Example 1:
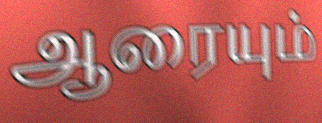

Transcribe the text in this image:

ஆரையும்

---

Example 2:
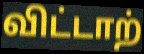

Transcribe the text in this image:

விட்டாற்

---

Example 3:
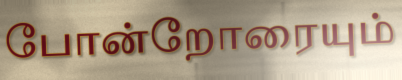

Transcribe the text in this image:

போன்றோரையும்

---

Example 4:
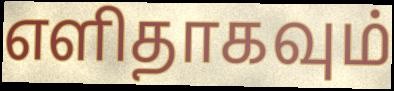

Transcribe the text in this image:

எளிதாகவும்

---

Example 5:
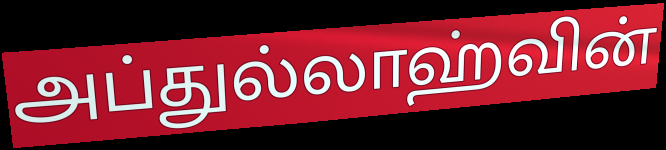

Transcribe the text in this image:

அப்துல்லாஹ்வின்